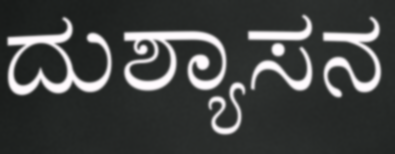
ದುಶ್ಯಾಸನ